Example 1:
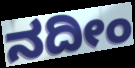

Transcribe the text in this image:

ನದೀಂ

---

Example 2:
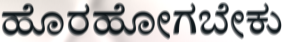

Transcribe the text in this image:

ಹೊರಹೋಗಬೇಕು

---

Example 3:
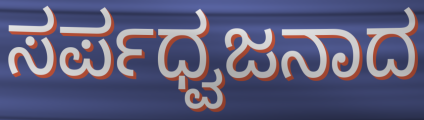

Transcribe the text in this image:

ಸರ್ಪಧ್ವಜನಾದ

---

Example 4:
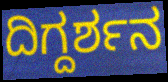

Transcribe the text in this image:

ದಿಗ್ದರ್ಶನ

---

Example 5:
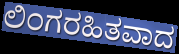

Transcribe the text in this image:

ಲಿಂಗರಹಿತವಾದ